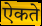
ऐकते